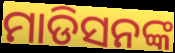
ମାଡିସନଙ୍କ